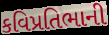
કવિપ્રતિભાની